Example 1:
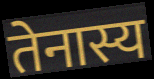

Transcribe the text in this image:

तेनास्य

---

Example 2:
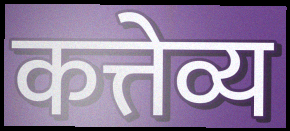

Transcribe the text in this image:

कत्तेव्य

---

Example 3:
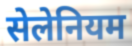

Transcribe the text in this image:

सेलेनियम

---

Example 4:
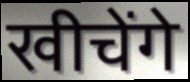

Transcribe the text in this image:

खीचेंगे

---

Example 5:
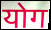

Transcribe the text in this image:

योग